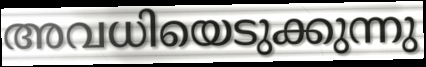
അവധിയെടുക്കുന്നു